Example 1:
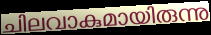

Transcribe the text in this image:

ചിലവാകുമായിരുന്നു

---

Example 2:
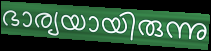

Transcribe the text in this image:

ഭാര്യയായിരുന്നു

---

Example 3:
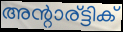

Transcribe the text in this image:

അന്റാര്ട്ടിക്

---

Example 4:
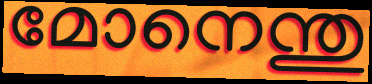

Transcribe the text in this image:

മോനെന്തു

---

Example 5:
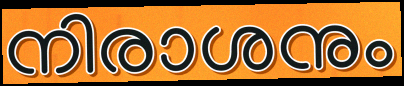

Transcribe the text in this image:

നിരാശനും